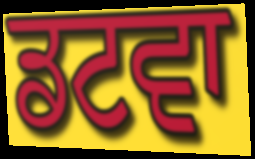
ਡਟਵਾ